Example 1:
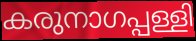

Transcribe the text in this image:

കരുനാഗപ്പള്ളി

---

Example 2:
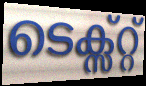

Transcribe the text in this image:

ടെക്സ്റ്റ്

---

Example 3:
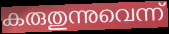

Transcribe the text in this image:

കരുതുന്നുവെന്ന്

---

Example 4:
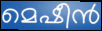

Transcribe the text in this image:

മെഷീൻ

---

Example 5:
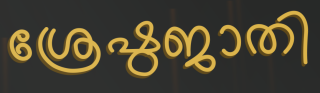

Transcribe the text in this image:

ശ്രേഷ്ഠജാതി